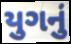
યુગનું